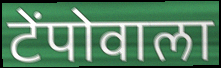
टेंपोवाला